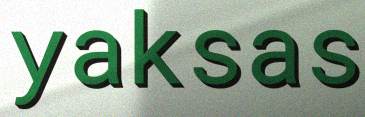
yaksas